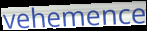
vehemence